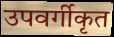
उपवर्गीकृत